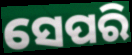
ସେପରି